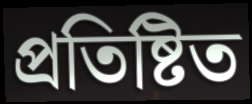
প্রতিষ্টিত